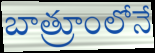
బాత్రూంలోనే